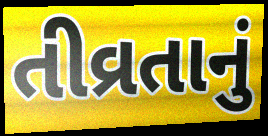
તીવ્રતાનું